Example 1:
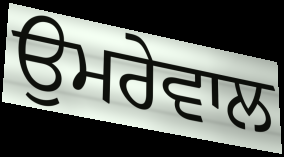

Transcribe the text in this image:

ਉਮਰੇਵਾਲ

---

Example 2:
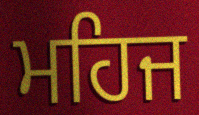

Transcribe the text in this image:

ਮਹਿਜ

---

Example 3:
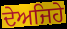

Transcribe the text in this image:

ਦੇਅਜਿਹੇ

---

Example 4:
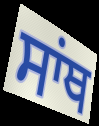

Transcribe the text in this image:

ਸਾਂਥ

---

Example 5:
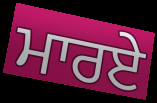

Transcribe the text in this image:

ਮਾਰਏ